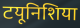
टयूनिशिया